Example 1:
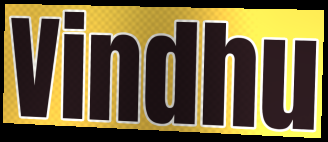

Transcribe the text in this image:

Vindhu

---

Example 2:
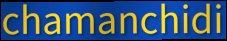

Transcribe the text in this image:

chamanchidi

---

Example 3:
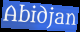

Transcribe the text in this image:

Abidjan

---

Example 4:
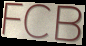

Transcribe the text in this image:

FCB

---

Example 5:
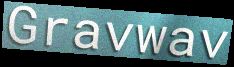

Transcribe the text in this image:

Gravwav